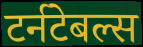
टर्नटेबल्स